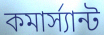
কমার্স্যান্ট